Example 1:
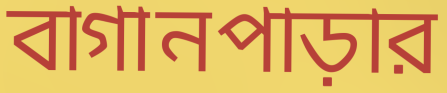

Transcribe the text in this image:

বাগানপাড়ার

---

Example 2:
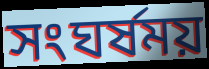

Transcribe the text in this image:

সংঘর্ষময়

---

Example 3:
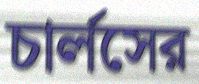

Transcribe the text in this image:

চার্লসের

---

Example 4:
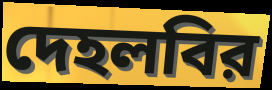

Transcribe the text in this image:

দেহলবির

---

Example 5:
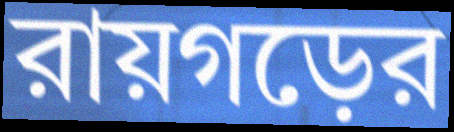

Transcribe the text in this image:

রায়গড়ের